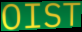
OIST